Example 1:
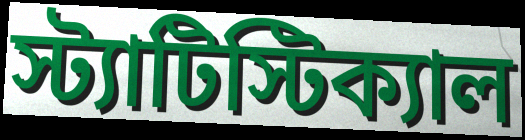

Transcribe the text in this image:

স্ট্যাটিস্টিক্যাল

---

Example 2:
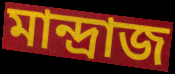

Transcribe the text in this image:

মান্দ্রাজ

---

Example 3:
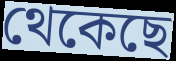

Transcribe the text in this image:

থেকেছে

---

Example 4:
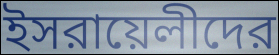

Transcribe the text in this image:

ইসরায়েলীদের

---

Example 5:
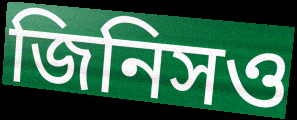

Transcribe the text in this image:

জিনিসও